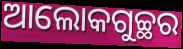
ଆଲୋକଗୁଚ୍ଛର